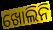
ଖୋଲିନି